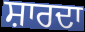
ਸ਼ਾਰਦਾ